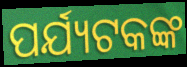
ପର୍ଯ୍ୟଟକଙ୍କ